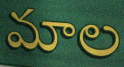
మాల